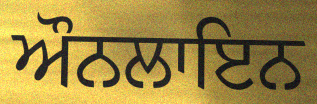
ਔਨਲਾਇਨ